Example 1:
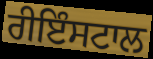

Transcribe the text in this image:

ਰੀਇੰਸਟਾਲ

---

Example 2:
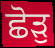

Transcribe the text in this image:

ਛੋੜੁ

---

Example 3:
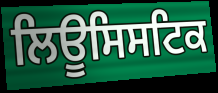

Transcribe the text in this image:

ਲਿਊਸਿਸਟਿਕ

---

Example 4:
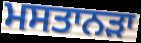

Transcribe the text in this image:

ਮਸਤਾਨੜਾ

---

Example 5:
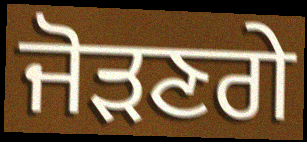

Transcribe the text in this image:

ਜੋੜਣਗੇ